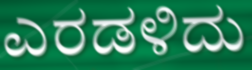
ಎರಡಳಿದು